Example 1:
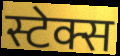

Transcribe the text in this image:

स्टेक्स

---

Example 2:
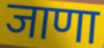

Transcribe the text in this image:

जाणा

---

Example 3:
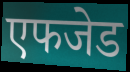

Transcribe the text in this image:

एफजेड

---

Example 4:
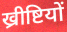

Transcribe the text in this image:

ख्रीष्टियों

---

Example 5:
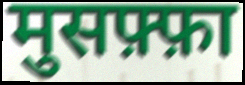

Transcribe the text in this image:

मुसफ़्फ़ा